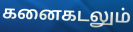
கனைகடலும்